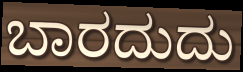
ಬಾರದುದು